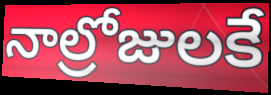
నాల్రోజులకే